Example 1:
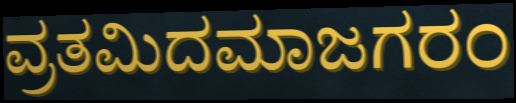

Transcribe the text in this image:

ವ್ರತಮಿದಮಾಜಗರಂ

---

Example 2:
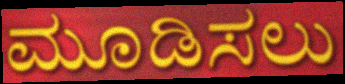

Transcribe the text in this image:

ಮೂಡಿಸಲು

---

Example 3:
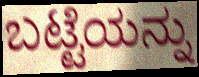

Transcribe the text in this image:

ಬಟ್ಟೆಯನ್ನು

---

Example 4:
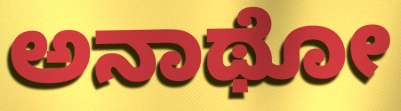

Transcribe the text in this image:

ಅನಾಥೋ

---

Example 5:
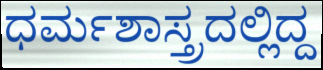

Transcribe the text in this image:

ಧರ್ಮಶಾಸ್ತ್ರದಲ್ಲಿದ್ದ